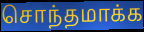
சொந்தமாக்க